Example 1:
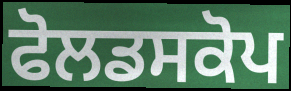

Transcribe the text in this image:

ਫੋਲਡਸਕੋਪ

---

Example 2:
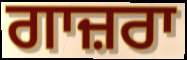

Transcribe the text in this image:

ਗਾਜ਼ਰਾ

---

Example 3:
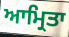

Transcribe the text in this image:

ਆਮ੍ਰਿਤਾ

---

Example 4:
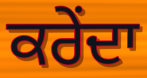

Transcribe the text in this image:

ਕਰੇਂਦਾ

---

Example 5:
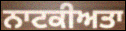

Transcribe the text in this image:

ਨਾਟਕੀਅਤਾ